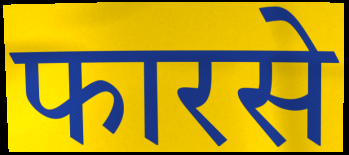
फारसे